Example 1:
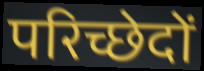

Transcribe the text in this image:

परिच्छेदों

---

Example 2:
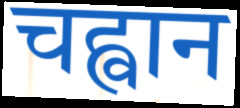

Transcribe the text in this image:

चह्वान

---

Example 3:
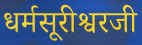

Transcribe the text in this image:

धर्मसूरीश्वरजी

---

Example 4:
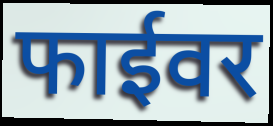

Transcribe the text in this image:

फाईवर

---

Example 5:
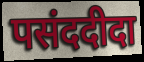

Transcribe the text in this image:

पसंददीदा